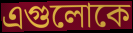
এগুলোকে